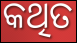
କଥିତ